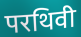
परथिवी